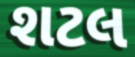
શટલ